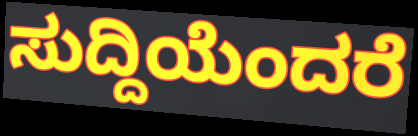
ಸುದ್ದಿಯೆಂದರೆ